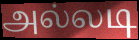
அல்லடி